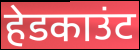
हेडकाउंट